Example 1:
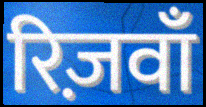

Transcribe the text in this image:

रिज़वाँ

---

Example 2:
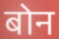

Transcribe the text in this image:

बोन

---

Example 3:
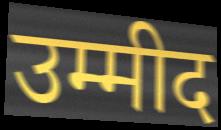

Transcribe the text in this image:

उम्मीद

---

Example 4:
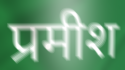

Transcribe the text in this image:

प्रमीश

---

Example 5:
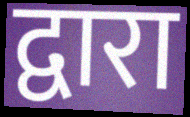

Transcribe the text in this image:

द्वारा